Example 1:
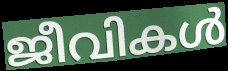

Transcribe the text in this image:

ജീവികൾ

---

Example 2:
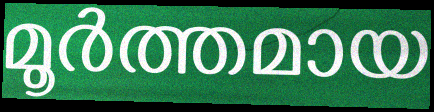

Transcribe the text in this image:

മൂർത്തമായ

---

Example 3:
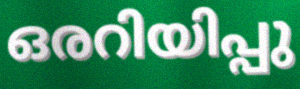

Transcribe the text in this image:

ഒരറിയിപ്പു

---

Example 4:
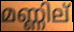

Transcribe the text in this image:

മണ്ണില്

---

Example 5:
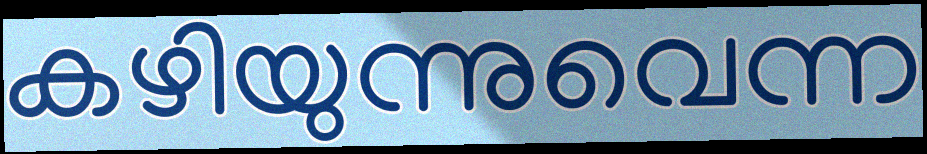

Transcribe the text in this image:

കഴിയുന്നുവെന്ന